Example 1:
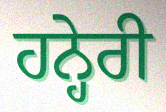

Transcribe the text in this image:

ਹਨ੍ਹੇਰੀ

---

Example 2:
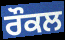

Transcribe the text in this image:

ਰੌਕਲ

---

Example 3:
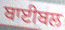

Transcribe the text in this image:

ਬਾਈਬਲ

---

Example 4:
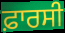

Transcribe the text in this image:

ਫ਼ਾਰਸੀ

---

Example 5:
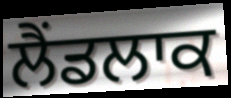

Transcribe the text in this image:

ਲੈਂਡਲਾਕ